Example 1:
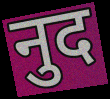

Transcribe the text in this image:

नुद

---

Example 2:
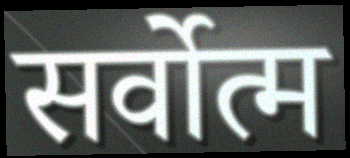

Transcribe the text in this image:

सर्वोत्म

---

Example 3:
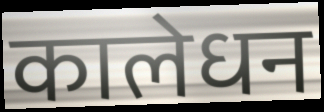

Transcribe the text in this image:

कालेधन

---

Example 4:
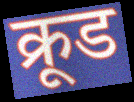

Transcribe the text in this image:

क्रूड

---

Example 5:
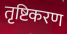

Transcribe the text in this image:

तृष्टिकरण